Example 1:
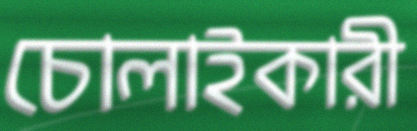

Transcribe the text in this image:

চোলাইকারী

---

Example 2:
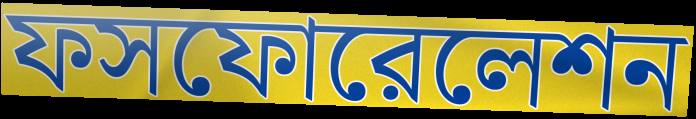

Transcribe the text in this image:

ফসফোরেলেশন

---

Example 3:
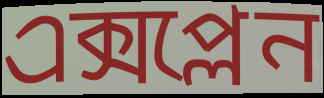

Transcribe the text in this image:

এক্সপ্লেন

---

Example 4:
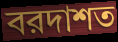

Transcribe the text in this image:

বরদাশত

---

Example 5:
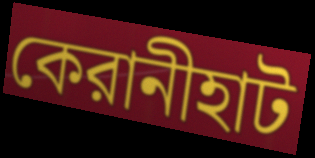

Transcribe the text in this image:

কেরানীহাট